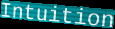
Intuition